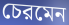
চেরমেন